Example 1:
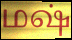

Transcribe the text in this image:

மஷ்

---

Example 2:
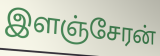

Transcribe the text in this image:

இளஞ்சேரன்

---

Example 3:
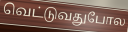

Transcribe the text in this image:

வெட்டுவதுபோல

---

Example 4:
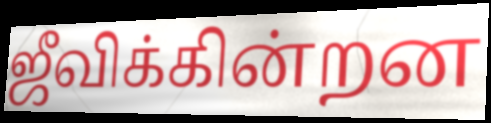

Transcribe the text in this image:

ஜீவிக்கின்றன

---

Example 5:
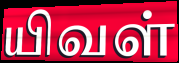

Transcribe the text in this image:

யிவள்